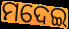
ମଦେଇ